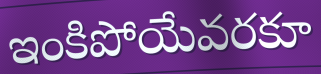
ఇంకిపోయేవరకూ